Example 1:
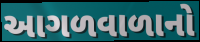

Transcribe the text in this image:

આગળવાળાનો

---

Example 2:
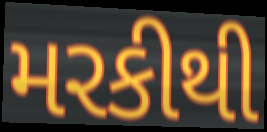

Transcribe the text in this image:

મરકીથી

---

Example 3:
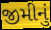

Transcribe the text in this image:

જીમીનું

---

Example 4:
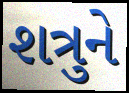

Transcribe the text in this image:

શત્રુને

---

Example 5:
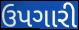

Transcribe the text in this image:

ઉપગારી